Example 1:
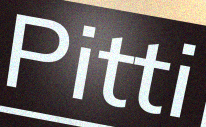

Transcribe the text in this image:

Pitti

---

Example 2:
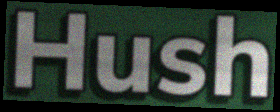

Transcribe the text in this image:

Hush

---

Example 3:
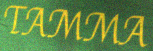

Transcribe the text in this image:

TAMMA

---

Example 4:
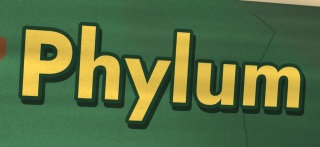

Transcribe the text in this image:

Phylum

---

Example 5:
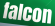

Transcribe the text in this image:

falcon